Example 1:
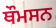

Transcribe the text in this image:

ਥੌਮਸਨ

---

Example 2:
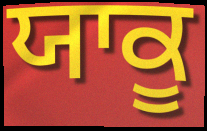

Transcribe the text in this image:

ਯਾਕੂ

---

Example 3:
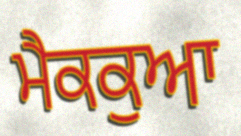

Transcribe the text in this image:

ਮੈਕਕੁਆ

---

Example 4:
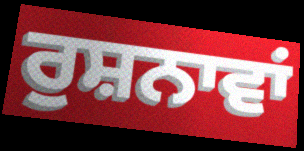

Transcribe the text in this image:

ਰੁਸ਼ਨਾਵਾਂ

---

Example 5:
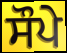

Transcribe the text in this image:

ਸੌਪੇ